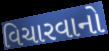
વિચારવાનો